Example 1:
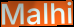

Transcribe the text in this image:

Malhi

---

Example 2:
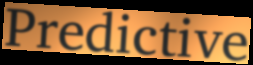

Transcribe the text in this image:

Predictive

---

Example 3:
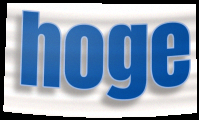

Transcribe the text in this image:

hoge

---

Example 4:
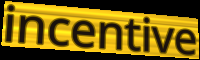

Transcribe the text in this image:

incentive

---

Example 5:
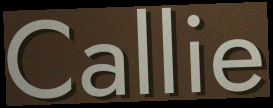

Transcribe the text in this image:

Callie